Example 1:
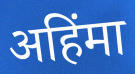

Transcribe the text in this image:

अहिंमा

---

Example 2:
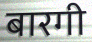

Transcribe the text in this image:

बारगी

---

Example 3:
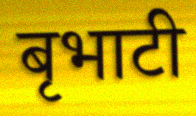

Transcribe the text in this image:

बृभाटी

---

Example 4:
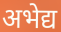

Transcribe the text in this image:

अभेद्य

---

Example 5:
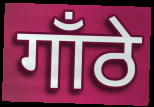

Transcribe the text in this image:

गाँठे